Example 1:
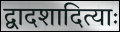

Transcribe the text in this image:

द्वादशादित्याः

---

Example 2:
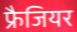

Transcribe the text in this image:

फ्रैजियर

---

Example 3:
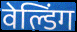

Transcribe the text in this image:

वेल्डिंग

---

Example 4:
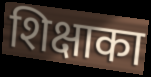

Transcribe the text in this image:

शिक्षाका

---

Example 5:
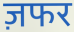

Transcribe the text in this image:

ज़फर